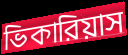
ভিকারিয়াস